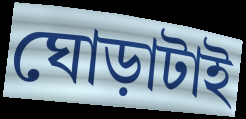
ঘোড়াটাই